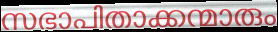
സഭാപിതാക്കന്മാരും